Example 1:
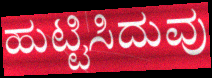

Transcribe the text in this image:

ಹುಟ್ಟಿಸಿದುವು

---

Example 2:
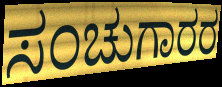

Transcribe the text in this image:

ಸಂಚುಗಾರರ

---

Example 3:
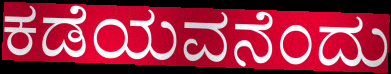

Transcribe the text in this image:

ಕಡೆಯವನೆಂದು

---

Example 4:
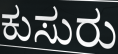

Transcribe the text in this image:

ಕುಸುರು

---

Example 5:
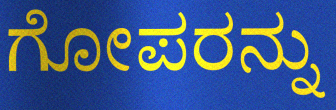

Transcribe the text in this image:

ಗೋಪರನ್ನು